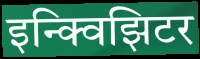
इन्क्विझिटर